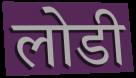
लोडी